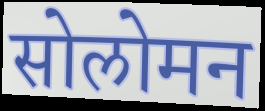
सोलोमन